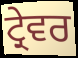
ਟ੍ਰੇਵਰ